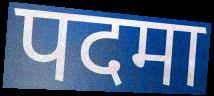
पदमा